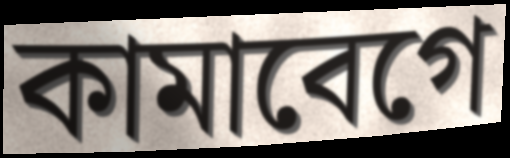
কামাবেগে